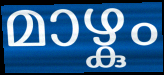
മാഴ്കും